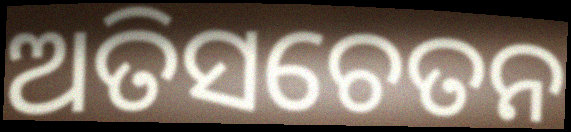
ଅତିସଚେତନ